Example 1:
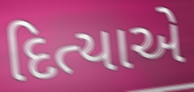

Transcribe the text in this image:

દિત્યાએ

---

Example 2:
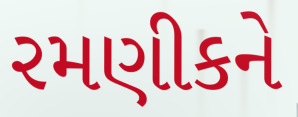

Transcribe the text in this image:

રમણીકને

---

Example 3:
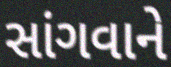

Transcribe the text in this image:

સાંગવાને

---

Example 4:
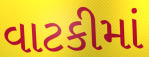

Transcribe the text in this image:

વાટકીમાં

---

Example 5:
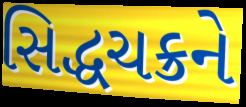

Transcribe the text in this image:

સિદ્ધચક્રને